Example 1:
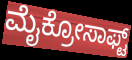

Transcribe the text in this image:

ಮೈಕ್ರೋಸಾಫ್ಟ್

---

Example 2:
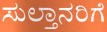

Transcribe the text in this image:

ಸುಲ್ತಾನರಿಗೆ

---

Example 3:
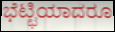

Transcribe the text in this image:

ಭೆಟ್ಟಿಯಾದರೂ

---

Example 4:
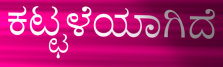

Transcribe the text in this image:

ಕಟ್ಟಳೆಯಾಗಿದೆ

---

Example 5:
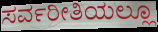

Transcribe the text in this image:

ಸರ್ವರೀತಿಯಲ್ಲೂ